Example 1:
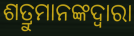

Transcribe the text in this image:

ଶତ୍ରୁମାନଙ୍କଦ୍ଵାରା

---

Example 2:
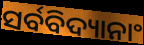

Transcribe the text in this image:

ସର୍ବବିଦ୍ୟାନାଂ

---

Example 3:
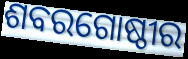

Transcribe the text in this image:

ଶବରଗୋଷ୍ଠୀର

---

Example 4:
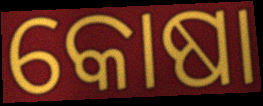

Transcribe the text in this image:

କୋଷା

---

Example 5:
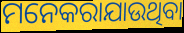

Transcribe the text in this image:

ମନେକରାଯାଉଥିବା